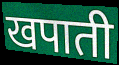
खपाती